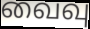
வைவு